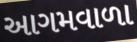
આગમવાળા